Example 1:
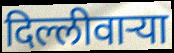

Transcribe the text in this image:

दिल्लीवाऱ्या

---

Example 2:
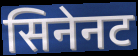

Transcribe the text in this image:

सिनेनट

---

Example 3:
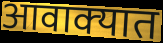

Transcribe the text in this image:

आवाक्‍यात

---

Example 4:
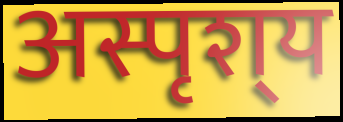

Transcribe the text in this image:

अस्पृश्य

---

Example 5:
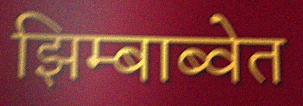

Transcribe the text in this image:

झिम्बाब्वेत